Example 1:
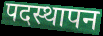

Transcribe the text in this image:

पदस्थापन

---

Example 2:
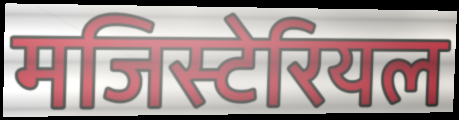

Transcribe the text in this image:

मजिस्टेरियल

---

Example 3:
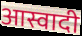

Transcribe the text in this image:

आस्वादी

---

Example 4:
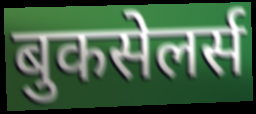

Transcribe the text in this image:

बुकसेलर्स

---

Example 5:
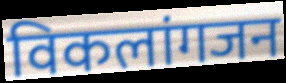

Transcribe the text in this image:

विकलांगजन